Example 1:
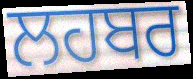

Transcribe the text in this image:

ਲਹਬਰ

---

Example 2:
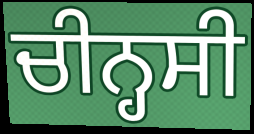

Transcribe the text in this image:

ਚੀਨ੍ਹ੍ਹਸੀ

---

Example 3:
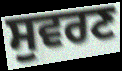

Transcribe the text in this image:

ਸੁਵਰਣ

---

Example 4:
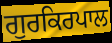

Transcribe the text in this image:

ਗੁਰਕਿਰਪਾਲ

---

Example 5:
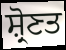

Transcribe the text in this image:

ਸ਼੍ਰੋਣਤ